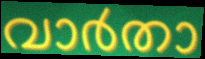
വാർതാ